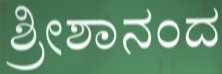
ಶ್ರೀಶಾನಂದ